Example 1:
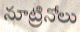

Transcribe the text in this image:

నూట్రినోలు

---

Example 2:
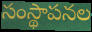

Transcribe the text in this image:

సంస్థాపనల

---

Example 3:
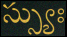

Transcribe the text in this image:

స్స్యుః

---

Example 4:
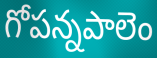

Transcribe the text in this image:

గోపన్నపాలెం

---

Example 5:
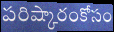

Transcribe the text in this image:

పరిష్కారంకోసం